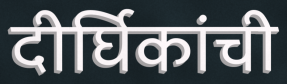
दीर्घिकांची